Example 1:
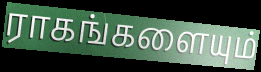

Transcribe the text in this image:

ராகங்களையும்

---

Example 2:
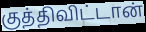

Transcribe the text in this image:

குத்திவிட்டான்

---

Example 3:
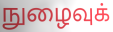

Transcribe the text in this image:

நுழைவுக்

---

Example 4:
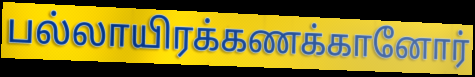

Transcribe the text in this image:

பல்லாயிரக்கணக்கானோர்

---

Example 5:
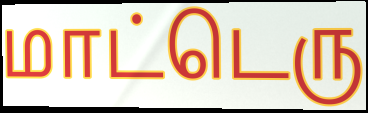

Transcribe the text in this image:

மாட்டெரு